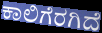
ಕಾಲಿಗೆರಗಿದೆ